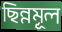
ছিন্নমূল